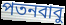
পতনবাবু